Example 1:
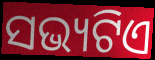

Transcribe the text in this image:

ସଭ୍ୟଟିଏ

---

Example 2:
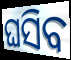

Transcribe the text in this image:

ଘସିବ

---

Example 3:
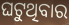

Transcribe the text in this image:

ଘଟୁଥିବାର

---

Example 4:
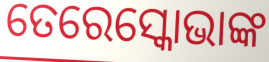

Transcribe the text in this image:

ତେରେସ୍କୋଭାଙ୍କ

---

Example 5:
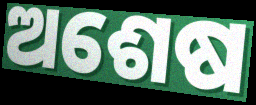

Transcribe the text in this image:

ଅଶେଷ